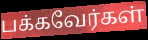
பக்கவேர்கள்